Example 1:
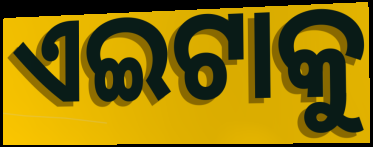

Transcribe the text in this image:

ଏଇଟାକୁ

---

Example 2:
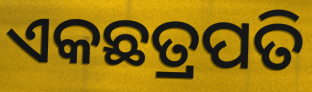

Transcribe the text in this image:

ଏକଛତ୍ରପତି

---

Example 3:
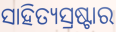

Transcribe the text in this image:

ସାହିତ୍ୟସ୍ରଷ୍ଟାର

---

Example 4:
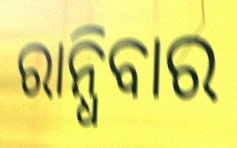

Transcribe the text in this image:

ରାନ୍ଧିବାର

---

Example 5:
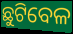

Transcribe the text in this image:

ଛୁଟିବେଳ